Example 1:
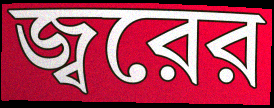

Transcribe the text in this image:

জ্বরের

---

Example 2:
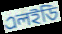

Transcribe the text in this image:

এলইডি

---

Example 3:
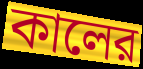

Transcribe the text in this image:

কালের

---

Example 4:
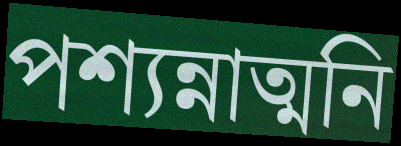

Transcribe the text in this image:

পশ্যন্নাত্মনি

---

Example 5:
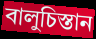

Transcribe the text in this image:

বালুচিস্তান